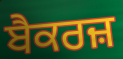
ਬੈਕਰਜ਼